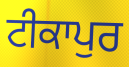
ਟੀਕਾਪੁਰ